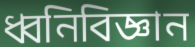
ধ্বনিবিজ্ঞান